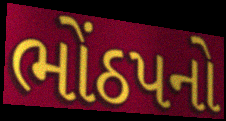
ભોંઠપનો